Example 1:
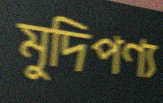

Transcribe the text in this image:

মুদিপণ্য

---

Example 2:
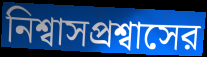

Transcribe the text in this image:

নিশ্বাসপ্রশ্বাসের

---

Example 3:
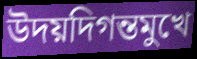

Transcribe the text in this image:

উদয়দিগন্তমুখে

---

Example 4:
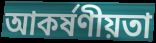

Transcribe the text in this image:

আকর্ষণীয়তা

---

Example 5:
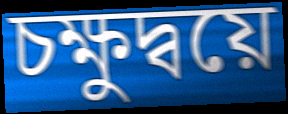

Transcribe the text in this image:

চক্ষুদ্বয়ে